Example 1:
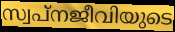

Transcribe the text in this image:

സ്വപ്നജീവിയുടെ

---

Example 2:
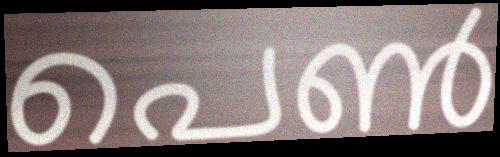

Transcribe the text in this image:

പെൺ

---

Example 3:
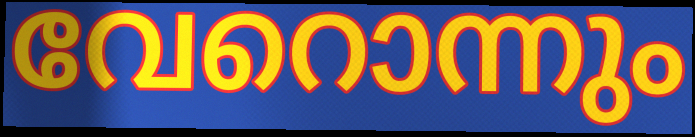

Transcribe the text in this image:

വേറൊന്നും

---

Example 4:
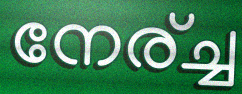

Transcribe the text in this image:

നേര്ച്ച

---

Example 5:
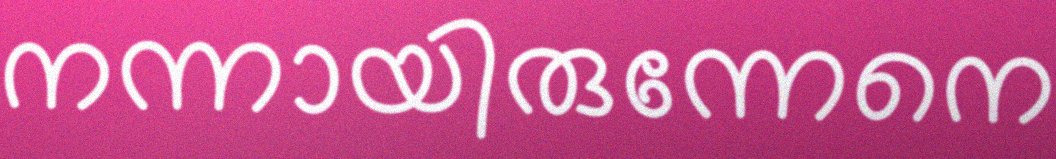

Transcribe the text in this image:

നന്നായിരുന്നേനെ